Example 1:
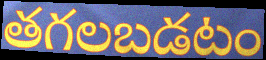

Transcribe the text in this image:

తగలబడటం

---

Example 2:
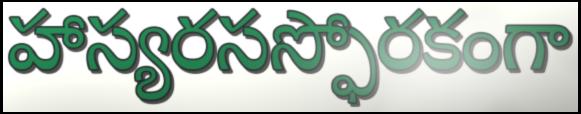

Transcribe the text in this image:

హాస్యరసస్ఫోరకంగా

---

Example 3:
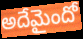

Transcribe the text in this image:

అదేమైందో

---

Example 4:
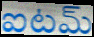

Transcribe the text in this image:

ఐటమ్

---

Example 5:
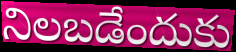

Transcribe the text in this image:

నిలబడేందుకు